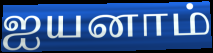
ஐயனாம்